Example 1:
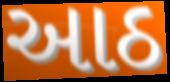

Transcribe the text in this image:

આઠ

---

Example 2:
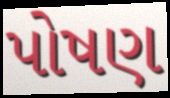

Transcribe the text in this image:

પોષણ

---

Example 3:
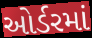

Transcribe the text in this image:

ઓર્ડરમાં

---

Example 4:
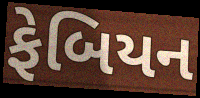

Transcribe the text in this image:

ફેબિયન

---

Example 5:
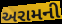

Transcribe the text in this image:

અરામની